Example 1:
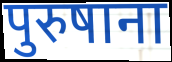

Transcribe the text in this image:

पुरुषाना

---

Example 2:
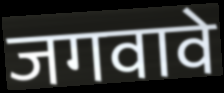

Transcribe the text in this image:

जगवावे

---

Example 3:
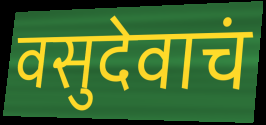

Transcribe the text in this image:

वसुदेवाचं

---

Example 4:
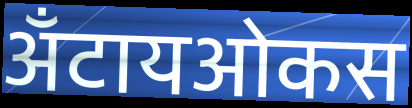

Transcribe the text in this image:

अँटायओकस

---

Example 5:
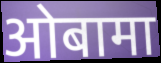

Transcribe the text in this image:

ओबामा